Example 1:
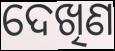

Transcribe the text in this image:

ଦେଖିଣ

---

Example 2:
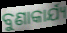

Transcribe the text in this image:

ବୁଣାକାର୍ଯ୍ୟ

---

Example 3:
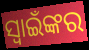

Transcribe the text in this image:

ସ୍ୱାଇଁଙ୍କର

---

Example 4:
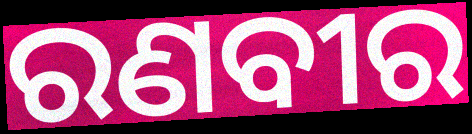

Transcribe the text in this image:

ରଣବୀର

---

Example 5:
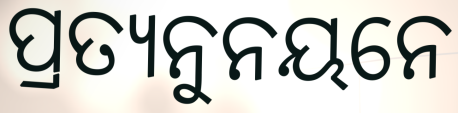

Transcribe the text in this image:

ପ୍ରତ୍ୟନୁନୟନେ